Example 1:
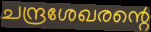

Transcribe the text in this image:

ചന്ദ്രശേഖരന്റെ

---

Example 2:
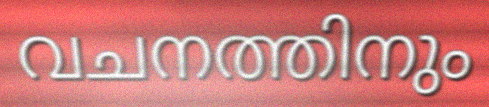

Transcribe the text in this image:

വചനത്തിനും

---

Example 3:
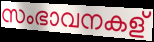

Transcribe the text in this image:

സംഭാവനകള്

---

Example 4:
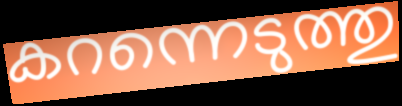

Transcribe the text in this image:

കറന്നെടുത്തു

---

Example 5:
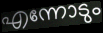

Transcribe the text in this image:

എന്നോടും